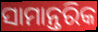
ସାମାନ୍ତରିକ